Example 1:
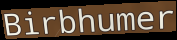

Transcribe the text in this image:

Birbhumer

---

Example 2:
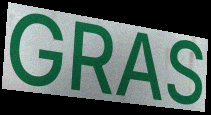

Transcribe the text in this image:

GRAS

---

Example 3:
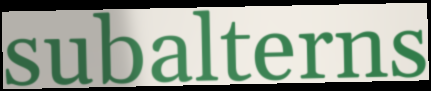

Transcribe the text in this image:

subalterns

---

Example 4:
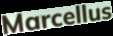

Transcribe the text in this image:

Marcellus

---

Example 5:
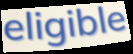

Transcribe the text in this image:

eligible